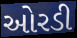
ઓરડી